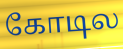
கோடில